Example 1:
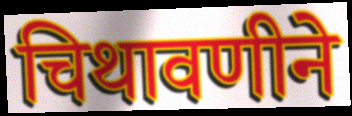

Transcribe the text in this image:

चिथावणीने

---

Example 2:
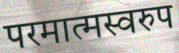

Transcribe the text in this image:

परमात्मस्वरुप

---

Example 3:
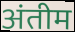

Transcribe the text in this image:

अंतीम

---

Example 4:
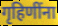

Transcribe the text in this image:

गृहिणींना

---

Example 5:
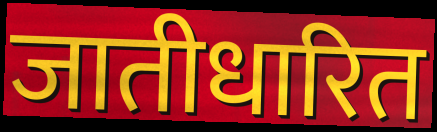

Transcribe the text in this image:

जातीधारित